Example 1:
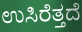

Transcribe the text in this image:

ಉಸಿರೆತ್ತದೆ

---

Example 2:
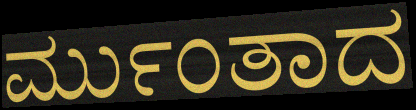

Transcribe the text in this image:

ರ್ಮುಂತಾದ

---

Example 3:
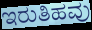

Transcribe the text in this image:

ಇರುತಿಹವು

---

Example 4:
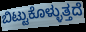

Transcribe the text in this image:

ಬಿಟ್ಟುಕೊಳ್ಳುತ್ತದೆ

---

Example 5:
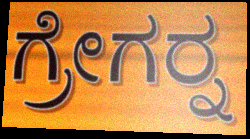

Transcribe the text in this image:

ಗ್ರೇಗರ್‍ನ